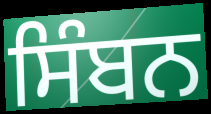
ਸਿੰਬਨ